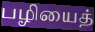
பழியைத்